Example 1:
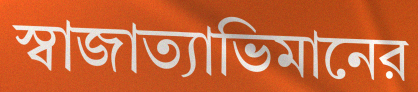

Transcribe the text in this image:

স্বাজাত্যাভিমানের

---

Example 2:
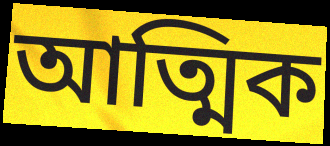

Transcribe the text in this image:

আত্মিক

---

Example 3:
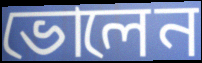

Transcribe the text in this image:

ভোলেন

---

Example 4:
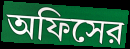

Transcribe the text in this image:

অফিসের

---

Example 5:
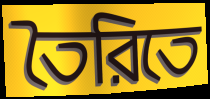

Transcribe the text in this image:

তৈরিতে